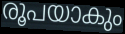
രൂപയാകും